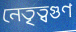
নেতৃত্বগুণ